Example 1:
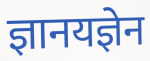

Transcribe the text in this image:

ज्ञानयज्ञेन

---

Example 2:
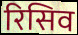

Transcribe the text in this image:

रिसिव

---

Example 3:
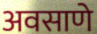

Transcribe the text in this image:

अवसाणे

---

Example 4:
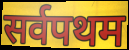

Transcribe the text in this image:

सर्वपथम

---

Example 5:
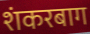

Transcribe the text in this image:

शंकरबाग